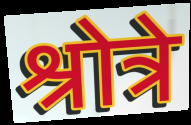
श्रोत्रे